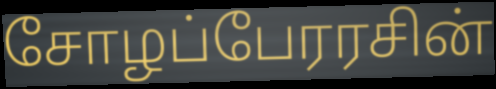
சோழப்பேரரசின்